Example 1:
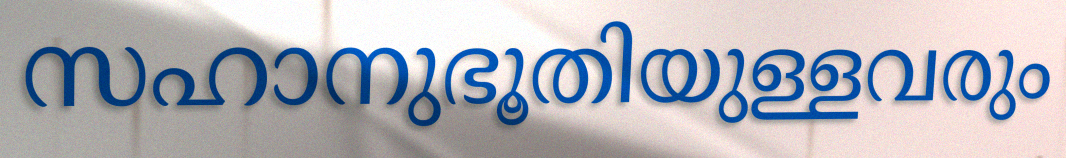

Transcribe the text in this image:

സഹാനുഭൂതിയുള്ളവരും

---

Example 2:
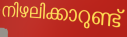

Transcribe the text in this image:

നിഴലിക്കാറുണ്ട്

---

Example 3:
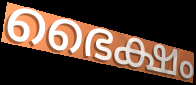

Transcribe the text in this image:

ഭൈക്ഷം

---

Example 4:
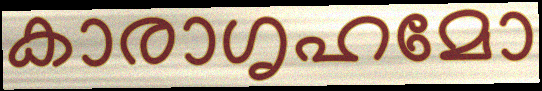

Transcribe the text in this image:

കാരാഗൃഹമോ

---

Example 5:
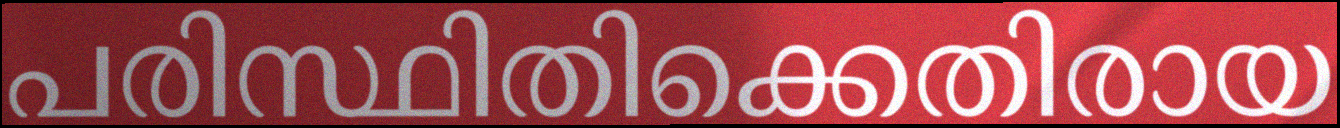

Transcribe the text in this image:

പരിസ്ഥിതിക്കെതിരായ